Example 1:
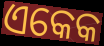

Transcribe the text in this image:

ଏକେକ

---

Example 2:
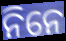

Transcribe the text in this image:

ନିନେ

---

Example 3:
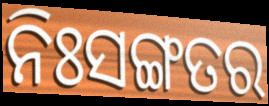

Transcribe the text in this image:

ନିଃସଙ୍ଗତର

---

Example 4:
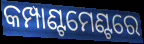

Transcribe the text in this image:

କମ୍ପାଣ୍ଟମେଣ୍ଟରେ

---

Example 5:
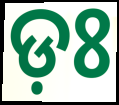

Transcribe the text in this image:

ଡ଼ଃ